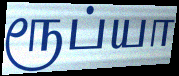
ரூப்யா